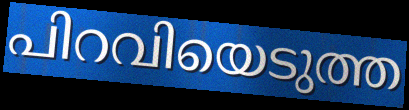
പിറവിയെടുത്ത